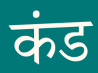
कंड